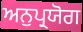
ਅਨੁਪ੍ਰਯੋਗ